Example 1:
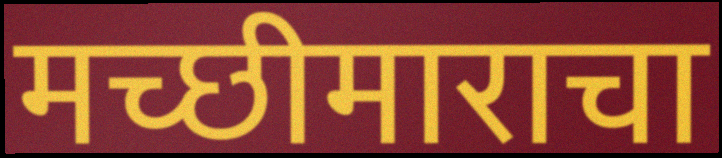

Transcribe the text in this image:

मच्छीमाराचा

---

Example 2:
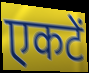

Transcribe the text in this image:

एकटें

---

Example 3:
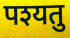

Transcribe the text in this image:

पश्यतु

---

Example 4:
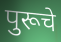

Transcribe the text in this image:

पुरूचे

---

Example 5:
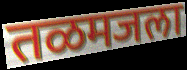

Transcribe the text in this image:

तळमजला